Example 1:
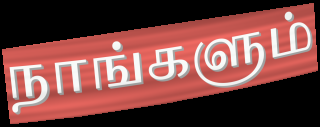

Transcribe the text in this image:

நாங்களும்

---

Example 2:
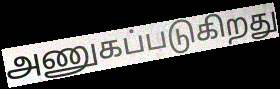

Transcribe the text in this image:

அணுகப்படுகிறது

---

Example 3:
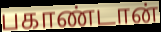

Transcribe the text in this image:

பகாண்டான்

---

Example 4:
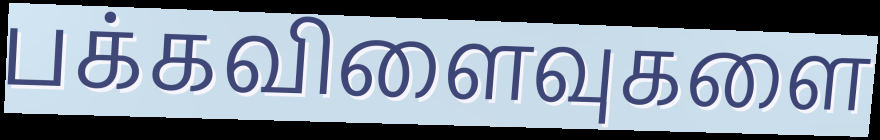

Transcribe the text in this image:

பக்கவிளைவுகளை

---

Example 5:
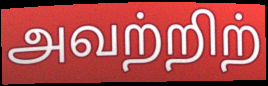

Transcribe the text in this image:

அவற்றிற்